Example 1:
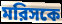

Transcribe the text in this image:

মরিসকে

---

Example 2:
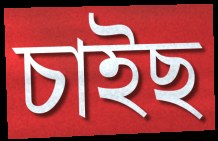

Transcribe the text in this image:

চাইছ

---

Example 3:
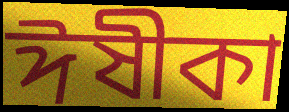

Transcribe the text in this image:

ঈষীকা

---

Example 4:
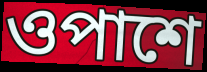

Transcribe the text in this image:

ওপাশে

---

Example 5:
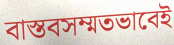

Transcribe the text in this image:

বাস্তবসম্মতভাবেই